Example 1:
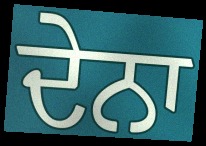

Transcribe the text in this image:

ਦੇਨਾ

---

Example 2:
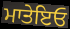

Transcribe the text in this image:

ਮਾਤੇਇਓ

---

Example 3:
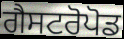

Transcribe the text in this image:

ਗੈਸਟਰੋਪੋਡ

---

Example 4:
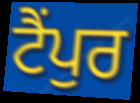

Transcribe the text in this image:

ਟੈਂਪੁਰ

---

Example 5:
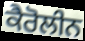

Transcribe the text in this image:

ਕੈਰੋਲੀਨ